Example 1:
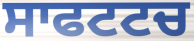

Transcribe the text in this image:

ਸਾਫਟਟਚ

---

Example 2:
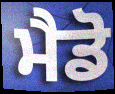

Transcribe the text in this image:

ਮੈਡੋ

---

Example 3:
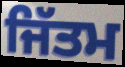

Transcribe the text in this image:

ਜਿੱਤਮ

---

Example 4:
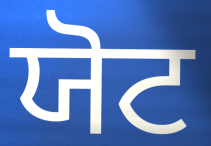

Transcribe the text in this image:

ਯੋਟ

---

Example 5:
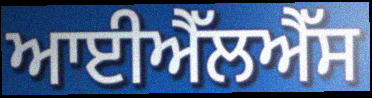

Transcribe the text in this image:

ਆਈਐੱਲਐੱਸ